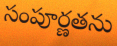
సంపూర్ణతను